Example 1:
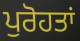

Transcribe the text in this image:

ਪੁਰੋਹਤਾਂ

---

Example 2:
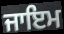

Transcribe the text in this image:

ਜਾਇਮ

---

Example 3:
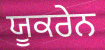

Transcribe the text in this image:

ਯੂਕਰੇਨ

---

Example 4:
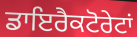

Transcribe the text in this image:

ਡਾਇਰੈਕਟੋਰੇਟਾਂ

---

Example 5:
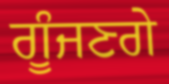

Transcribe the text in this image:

ਗੂੰਜਣਗੇ